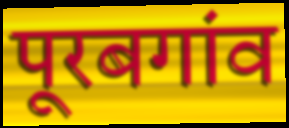
पूरबगांव